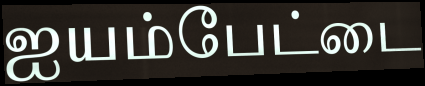
ஐயம்பேட்டை